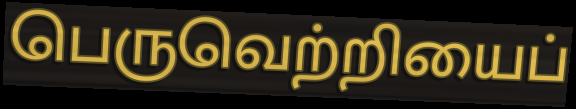
பெருவெற்றியைப்